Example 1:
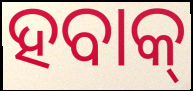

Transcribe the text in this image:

ହବାକ୍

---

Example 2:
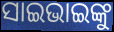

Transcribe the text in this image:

ସାଇଭାଇଙ୍କୁ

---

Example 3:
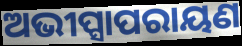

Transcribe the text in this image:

ଅଭୀପ୍ସାପରାୟଣ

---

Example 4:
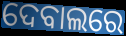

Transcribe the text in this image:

ଦେବାଲରେ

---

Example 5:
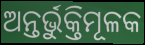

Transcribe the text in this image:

ଅନ୍ତର୍ଭୁକ୍ତିମୂଳକ